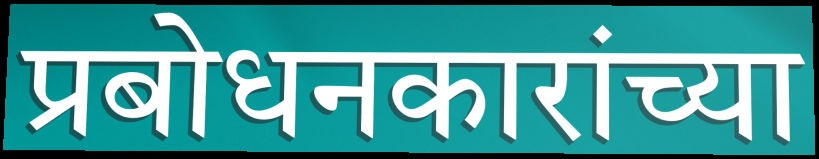
प्रबोधनकारांच्या